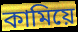
কামিয়ে